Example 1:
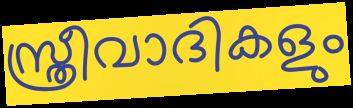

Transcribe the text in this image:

സ്ത്രീവാദികളും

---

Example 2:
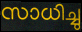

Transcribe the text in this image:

സാധിച്ചു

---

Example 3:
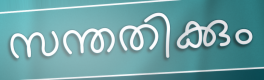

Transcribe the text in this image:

സന്തതിക്കും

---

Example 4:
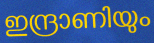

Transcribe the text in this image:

ഇന്ദ്രാണിയും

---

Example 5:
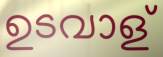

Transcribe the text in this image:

ഉടവാള്